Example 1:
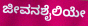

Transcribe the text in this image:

ಜೀವನಶೈಲಿಯೇ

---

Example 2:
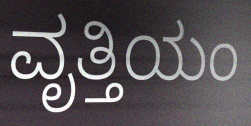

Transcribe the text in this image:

ವೃತ್ತಿಯಂ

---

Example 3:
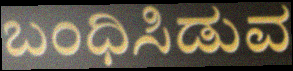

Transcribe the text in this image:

ಬಂಧಿಸಿಡುವ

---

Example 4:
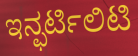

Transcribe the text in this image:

ಇನ್ಫರ್ಟಿಲಿಟಿ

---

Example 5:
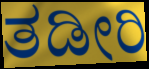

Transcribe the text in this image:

ತಡೀರಿ